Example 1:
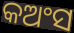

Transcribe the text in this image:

କଅଂସ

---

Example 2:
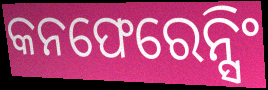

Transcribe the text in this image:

କନଫେରେନ୍ସିଂ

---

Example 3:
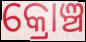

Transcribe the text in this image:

କ୍ରୋଞ୍ଚ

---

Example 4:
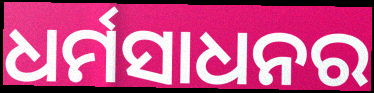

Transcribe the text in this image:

ଧର୍ମସାଧନର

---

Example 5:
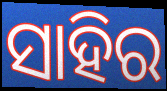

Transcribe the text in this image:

ସାହିର